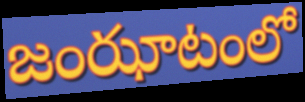
జంఝాటంలో